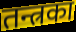
तन्त्रका